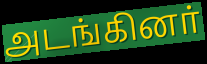
அடங்கினர்